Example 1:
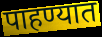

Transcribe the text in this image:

पाहण्यात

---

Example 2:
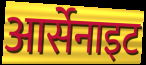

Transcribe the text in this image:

आर्सेनाइट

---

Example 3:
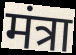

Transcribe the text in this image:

मंत्रा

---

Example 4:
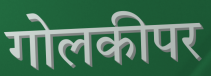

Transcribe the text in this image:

गोलकीपर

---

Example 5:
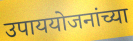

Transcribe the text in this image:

उपाययोजनांच्या